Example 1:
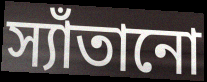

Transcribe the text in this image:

স্যাঁতানো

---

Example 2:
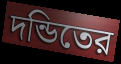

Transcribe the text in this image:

দন্ডিতের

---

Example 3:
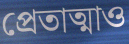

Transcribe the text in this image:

প্রেতাত্মাও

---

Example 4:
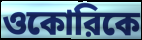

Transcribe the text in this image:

ওকোরিকে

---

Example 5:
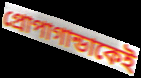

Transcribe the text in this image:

প্রোপাগান্ডাকেই